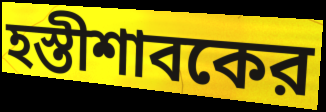
হস্তীশাবকের